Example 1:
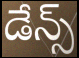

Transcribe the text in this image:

డేన్స్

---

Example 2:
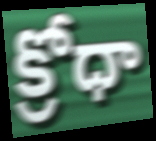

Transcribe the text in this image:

క్రోధా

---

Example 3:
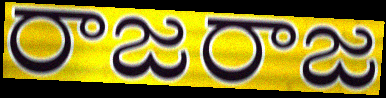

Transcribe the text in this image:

రాజరాజ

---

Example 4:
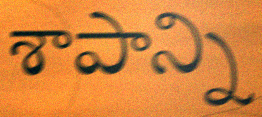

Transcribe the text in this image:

శాపాన్ని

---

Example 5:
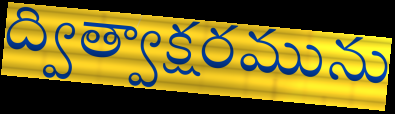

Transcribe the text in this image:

ద్విత్వాక్షరమును